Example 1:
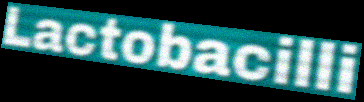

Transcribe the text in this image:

Lactobacilli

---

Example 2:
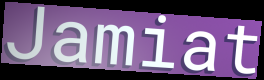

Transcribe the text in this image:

Jamiat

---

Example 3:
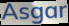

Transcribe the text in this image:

Asgar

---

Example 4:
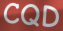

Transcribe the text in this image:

CQD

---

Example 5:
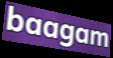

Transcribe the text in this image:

baagam